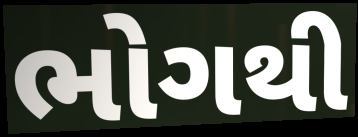
ભોગથી